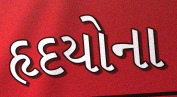
હૃદયોના